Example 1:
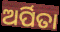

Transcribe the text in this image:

ଅର୍ପିତା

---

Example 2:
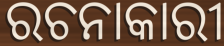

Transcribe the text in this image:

ରଚନାକାରୀ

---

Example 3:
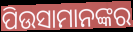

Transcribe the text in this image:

ପିଉସାମାନଙ୍କର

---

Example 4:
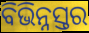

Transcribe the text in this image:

ବିଭିନ୍ନସ୍ତର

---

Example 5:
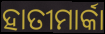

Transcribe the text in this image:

ହାତୀମାର୍କା